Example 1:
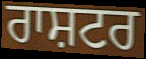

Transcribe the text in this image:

ਰਾਸ਼ਟਰ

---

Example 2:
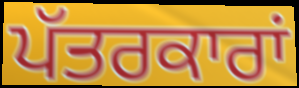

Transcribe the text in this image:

ਪੱਤਰਕਾਰਾਂ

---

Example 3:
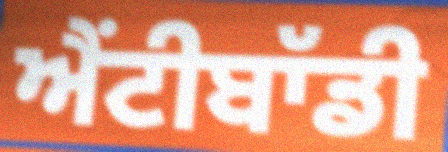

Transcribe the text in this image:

ਐਂਟੀਬਾੱਡੀ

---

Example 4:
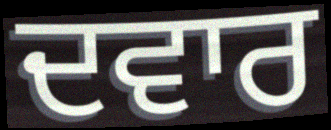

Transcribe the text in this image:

ਦਵਾਰ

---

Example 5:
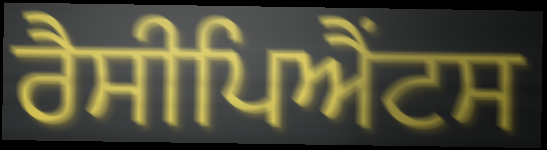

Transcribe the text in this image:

ਰੈਸੀਪਿਐਂਟਸ